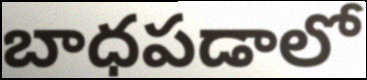
బాధపడాలో